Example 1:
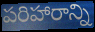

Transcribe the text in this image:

పరిహారాన్ని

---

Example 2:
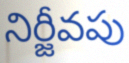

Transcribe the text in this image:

నిర్జీవపు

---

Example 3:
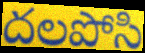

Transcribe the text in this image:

దలపోసి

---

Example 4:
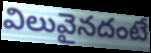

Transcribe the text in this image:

విలువైనదంటే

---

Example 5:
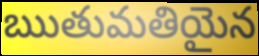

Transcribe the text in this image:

ఋతుమతియైన